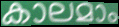
കാലമാം